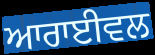
ਆਰਾਈਵਲ